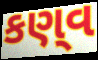
કણ્‌વ